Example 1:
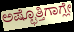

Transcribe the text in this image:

ಅಷ್ಟೊತ್ತಿಗಾಗ್ಲೇ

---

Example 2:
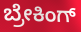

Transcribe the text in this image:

ಬ್ರೇಕಿಂಗ್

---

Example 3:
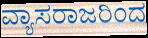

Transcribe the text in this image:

ವ್ಯಾಸರಾಜರಿಂದ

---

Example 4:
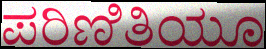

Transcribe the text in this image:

ಪರಿಣಿತಿಯೂ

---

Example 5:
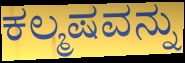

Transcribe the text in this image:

ಕಲ್ಮಷವನ್ನು